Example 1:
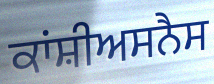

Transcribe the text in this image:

ਕਾਂਸ਼ੀਅਸਨੈਸ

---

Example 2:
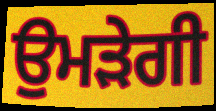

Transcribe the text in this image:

ਉਮੜੇਗੀ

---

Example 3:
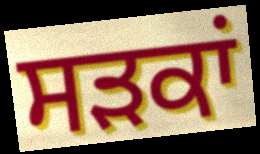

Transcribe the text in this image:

ਸੜਕਾਂ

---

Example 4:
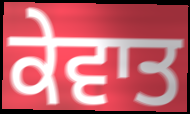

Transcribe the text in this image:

ਕੇਵਾਤ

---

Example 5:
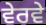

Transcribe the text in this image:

ਵੇਰਵੇ